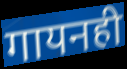
गायनही